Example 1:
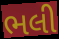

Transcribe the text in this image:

ભલી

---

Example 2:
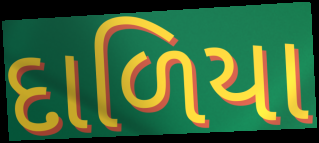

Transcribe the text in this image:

દાળિયા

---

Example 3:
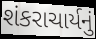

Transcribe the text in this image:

શંકરાચાર્યનું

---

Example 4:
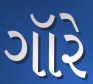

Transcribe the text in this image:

ગૉરે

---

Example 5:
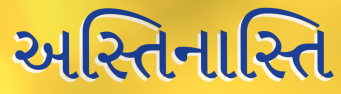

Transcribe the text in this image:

અસ્તિનાસ્તિ